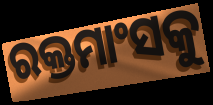
ରକ୍ତମାଂସକୁ